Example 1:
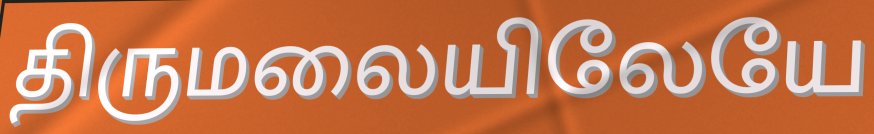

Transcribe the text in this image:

திருமலையிலேயே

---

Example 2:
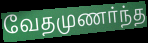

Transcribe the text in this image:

வேதமுணர்ந்த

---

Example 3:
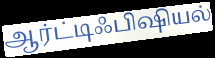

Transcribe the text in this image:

ஆர்ட்டிஃபிஷியல்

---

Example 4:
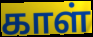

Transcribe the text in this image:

காள்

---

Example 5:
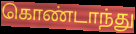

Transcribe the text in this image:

கொண்டாந்து